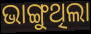
ଭାଙ୍ଗୁଥିଲା